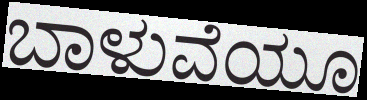
ಬಾಳುವೆಯೂ